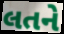
લતને